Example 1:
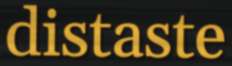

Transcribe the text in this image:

distaste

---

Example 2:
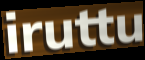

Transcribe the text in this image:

iruttu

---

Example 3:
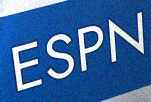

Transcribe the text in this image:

ESPN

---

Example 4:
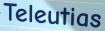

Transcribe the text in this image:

Teleutias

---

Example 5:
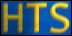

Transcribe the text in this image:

HTS